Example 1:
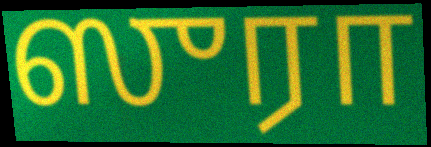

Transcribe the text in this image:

ஸுரா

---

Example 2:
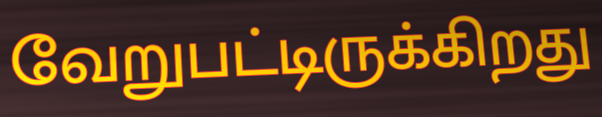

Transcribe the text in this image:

வேறுபட்டிருக்கிறது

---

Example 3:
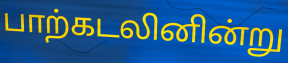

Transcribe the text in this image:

பாற்கடலினின்று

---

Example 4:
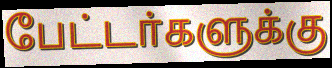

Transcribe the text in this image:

பேட்டர்களுக்கு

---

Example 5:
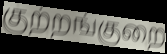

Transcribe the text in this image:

குற்றங்குறை